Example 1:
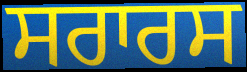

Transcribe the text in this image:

ਸਰਾਰਸ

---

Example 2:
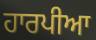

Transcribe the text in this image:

ਹਾਰਪੀਆ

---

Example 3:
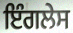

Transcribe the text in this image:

ਇੰਗਲੇਸ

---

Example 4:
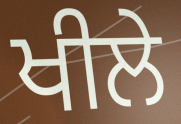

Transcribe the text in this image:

ਖੀਲੇ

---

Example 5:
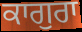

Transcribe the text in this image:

ਕਾਗੁਰਾ